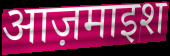
आज़माइश